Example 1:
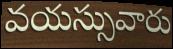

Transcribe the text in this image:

వయస్సువారు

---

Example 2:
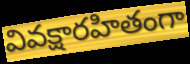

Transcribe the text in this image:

వివక్షారహితంగా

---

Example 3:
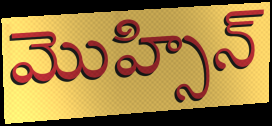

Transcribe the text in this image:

మొహ్సిన్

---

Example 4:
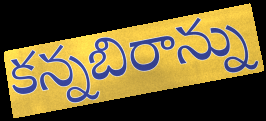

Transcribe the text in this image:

కన్నబిరాన్ను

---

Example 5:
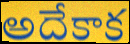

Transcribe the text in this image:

అదేకాక